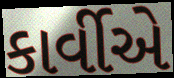
કાર્વીએ